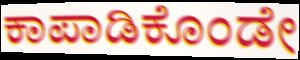
ಕಾಪಾಡಿಕೊಂಡೇ